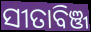
ସୀତାବିଞ୍ଜ